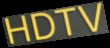
HDTV